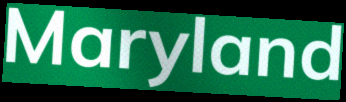
Maryland